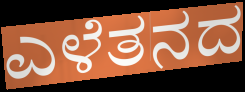
ಎಳೆತನದ